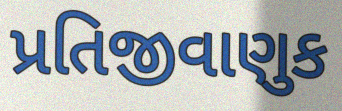
પ્રતિજીવાણુક